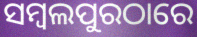
ସମ୍ବଲପୁରଠାରେ